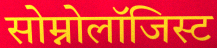
सोम्नोलॉजिस्ट